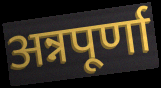
अन्नपूर्णा